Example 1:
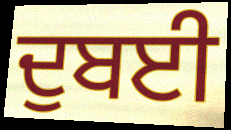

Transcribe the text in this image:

ਦੁਬਈ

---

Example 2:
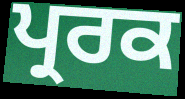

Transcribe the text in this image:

ਪ੍ਰਰਕ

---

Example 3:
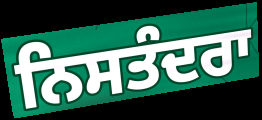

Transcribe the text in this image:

ਨਿਸਤੰਦਰਾ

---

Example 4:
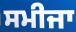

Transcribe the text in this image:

ਸਮੀਜਾ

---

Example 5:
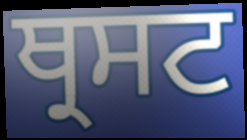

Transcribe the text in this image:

ਥ੍ਰਸਟ